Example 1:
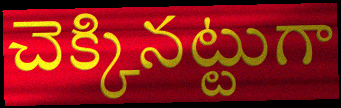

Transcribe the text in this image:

చెక్కినట్టుగా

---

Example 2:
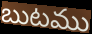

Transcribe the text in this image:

బుటము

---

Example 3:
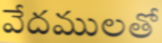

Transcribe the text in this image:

వేదములతో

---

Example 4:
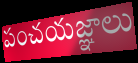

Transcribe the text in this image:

పంచయజ్ఞాలు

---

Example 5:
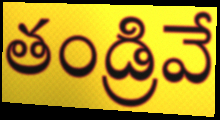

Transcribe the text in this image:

తండ్రివే